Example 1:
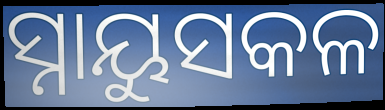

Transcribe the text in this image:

ସ୍ନାୟୁସକଳ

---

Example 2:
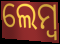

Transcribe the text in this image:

ଲେମ୍ବ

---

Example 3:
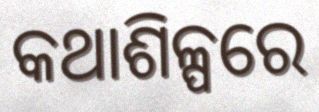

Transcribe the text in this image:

କଥାଶିଳ୍ପରେ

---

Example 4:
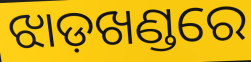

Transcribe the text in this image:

ଝାଡ଼ଖଣ୍ଡରେ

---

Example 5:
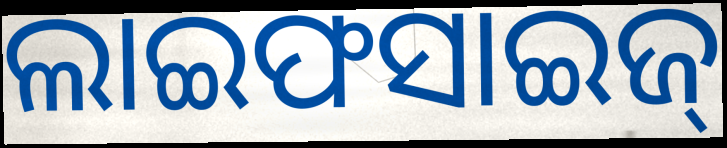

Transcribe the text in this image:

ଲାଇଫସାଇଜ୍